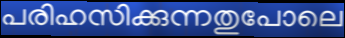
പരിഹസിക്കുന്നതുപോലെ